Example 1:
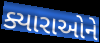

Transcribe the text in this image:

ક્યારાઓને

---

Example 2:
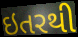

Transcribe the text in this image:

ઇતરથી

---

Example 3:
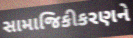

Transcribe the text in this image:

સામાજિકીકરણને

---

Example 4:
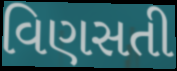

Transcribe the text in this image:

વિણસતી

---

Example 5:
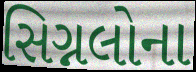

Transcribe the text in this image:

સિગ્નલોના